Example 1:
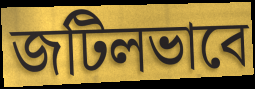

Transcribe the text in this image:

জটিলভাবে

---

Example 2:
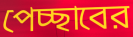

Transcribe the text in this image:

পেচ্ছাবের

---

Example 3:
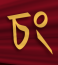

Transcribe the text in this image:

চং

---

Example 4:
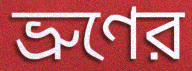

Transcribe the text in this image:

ভ্রুণের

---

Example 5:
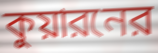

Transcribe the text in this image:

কুয়ারনের